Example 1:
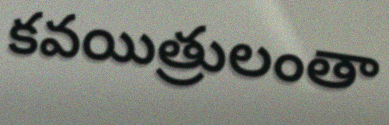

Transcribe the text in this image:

కవయిత్రులంతా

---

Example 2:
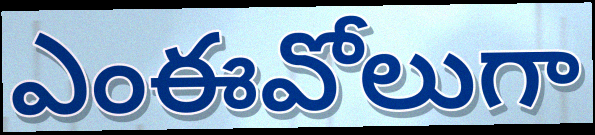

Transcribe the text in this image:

ఎంఈవోలుగా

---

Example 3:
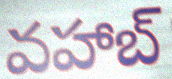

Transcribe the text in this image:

వహాబ్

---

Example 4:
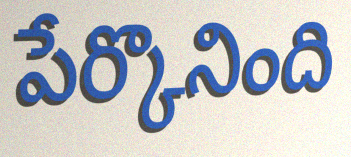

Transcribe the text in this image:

పేర్కొనింది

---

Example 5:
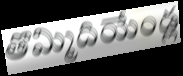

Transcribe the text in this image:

తొమ్మిదియేండ్ల